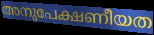
അനുപേക്ഷണീയത